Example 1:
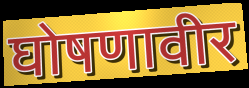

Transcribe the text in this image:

घोषणावीर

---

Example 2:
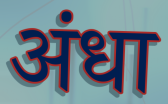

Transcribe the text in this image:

अंधा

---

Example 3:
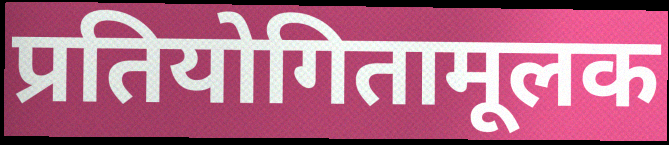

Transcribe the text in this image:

प्रतियोगितामूलक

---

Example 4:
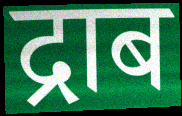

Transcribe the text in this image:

द्राब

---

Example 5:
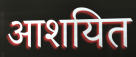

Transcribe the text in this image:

आशयित